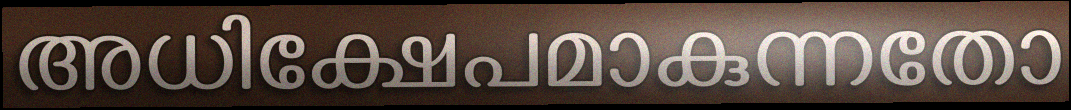
അധിക്ഷേപമാകുന്നതോ